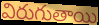
విరుగుతాయి